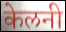
केलनी